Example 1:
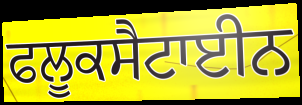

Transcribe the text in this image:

ਫਲੂਕਸੈਟਾਈਨ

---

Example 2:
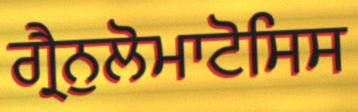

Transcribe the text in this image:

ਗ੍ਰੈਨੁਲੋਮਾਟੋਸਿਸ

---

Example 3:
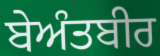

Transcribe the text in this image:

ਬੇਅੰਤਬੀਰ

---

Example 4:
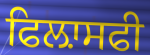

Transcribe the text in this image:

ਫਿਲ਼ਾਸਫੀ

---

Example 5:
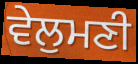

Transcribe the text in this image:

ਵੇਲੁਮਣੀ